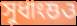
সুধাংশুও